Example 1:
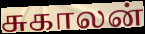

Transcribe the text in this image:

சுகாலன்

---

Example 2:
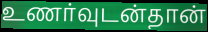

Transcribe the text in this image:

உணர்வுடன்தான்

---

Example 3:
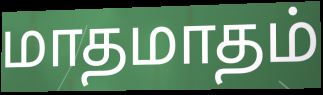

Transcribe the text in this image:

மாதமாதம்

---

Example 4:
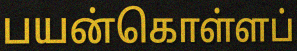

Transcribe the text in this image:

பயன்கொள்ளப்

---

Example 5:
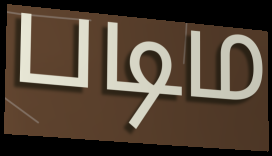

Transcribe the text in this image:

படிம